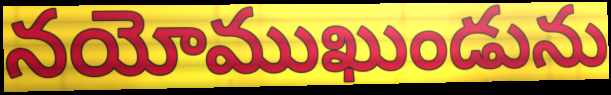
నయోముఖుండును